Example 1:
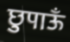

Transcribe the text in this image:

छुपाऊँ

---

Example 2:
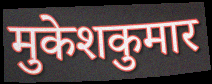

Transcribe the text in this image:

मुकेशकुमार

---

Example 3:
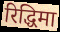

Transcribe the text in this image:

रिद्धिमा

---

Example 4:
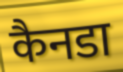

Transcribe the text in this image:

कैनडा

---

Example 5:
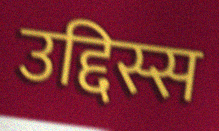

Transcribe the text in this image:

उद्दिस्स